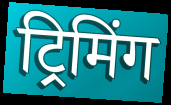
ट्रिमिंग